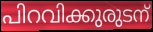
പിറവിക്കുരുടന്